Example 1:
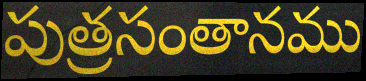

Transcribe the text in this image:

పుత్రసంతానము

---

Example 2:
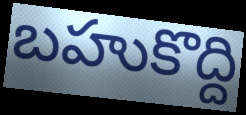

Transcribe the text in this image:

బహుకొద్ది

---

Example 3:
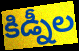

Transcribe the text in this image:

కిడ్నీల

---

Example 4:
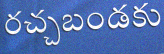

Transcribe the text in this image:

రచ్చబండకు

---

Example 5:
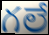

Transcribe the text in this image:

గలే